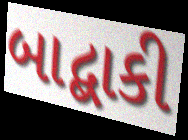
બાદ્બાકી